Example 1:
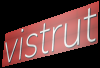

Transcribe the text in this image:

vistrut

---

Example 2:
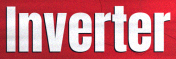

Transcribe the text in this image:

Inverter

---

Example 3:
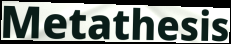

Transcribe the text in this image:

Metathesis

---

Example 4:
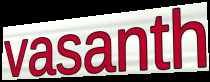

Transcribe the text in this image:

vasanth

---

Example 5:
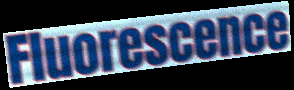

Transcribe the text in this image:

Fluorescence